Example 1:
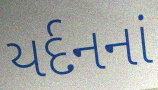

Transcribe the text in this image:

યર્દનનાં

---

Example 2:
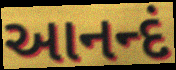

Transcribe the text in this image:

આનન્દં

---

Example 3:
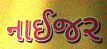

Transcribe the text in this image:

નાઈજર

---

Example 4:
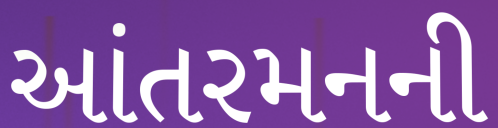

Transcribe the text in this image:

આંતરમનની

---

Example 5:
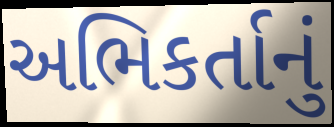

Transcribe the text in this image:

અભિકર્તાનું